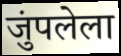
जुंपलेला